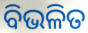
ବିଭଳିତ